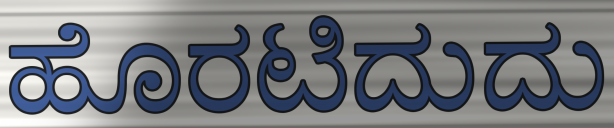
ಹೊರಟಿದುದು